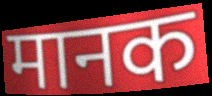
मानक